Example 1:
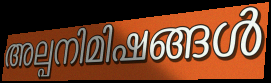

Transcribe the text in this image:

അല്പനിമിഷങ്ങൾ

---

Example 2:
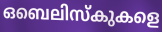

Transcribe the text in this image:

ഒബെലിസ്കുകളെ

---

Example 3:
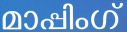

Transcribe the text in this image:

മാപ്പിംഗ്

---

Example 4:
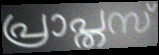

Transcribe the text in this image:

പ്രാപ്തസ്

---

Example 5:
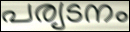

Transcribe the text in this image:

പര്യടനം